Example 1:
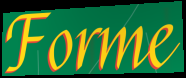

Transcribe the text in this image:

Forme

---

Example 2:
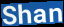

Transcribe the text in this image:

Shan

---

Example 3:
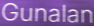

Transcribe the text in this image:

Gunalan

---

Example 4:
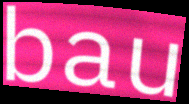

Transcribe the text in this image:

bau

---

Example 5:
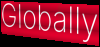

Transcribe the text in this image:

Globally